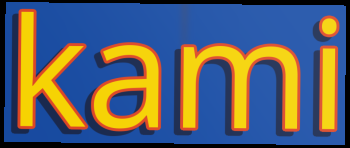
kami